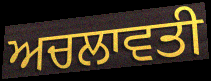
ਅਚਲਾਵਤੀ